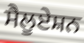
ਸੈਲੂਏਸ਼ਨ